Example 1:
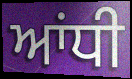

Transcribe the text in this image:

ਆਂਧੀ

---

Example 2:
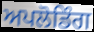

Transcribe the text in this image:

ਅਪਲੋਡਿੰਗ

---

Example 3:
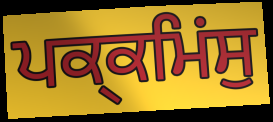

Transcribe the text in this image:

ਪਕ੍ਕਮਿਂਸੁ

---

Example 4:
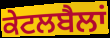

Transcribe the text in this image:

ਕੇਟਲਬੈਲਾਂ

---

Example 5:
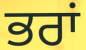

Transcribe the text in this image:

ਭਰਾਂ